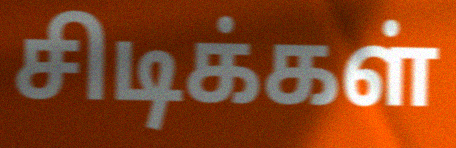
சிடிக்கள்